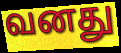
வனது